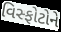
વિસ્ફોટોને